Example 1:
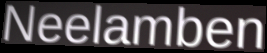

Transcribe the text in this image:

Neelamben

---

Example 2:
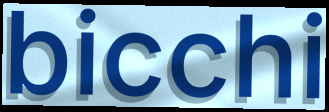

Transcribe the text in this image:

bicchi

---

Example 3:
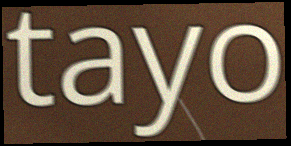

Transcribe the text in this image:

tayo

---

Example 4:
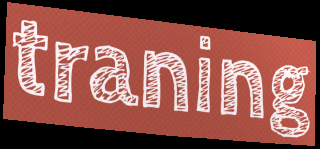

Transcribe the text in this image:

traning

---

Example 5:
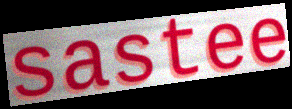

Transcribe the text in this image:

sastee